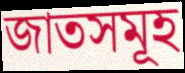
জাতসমূহ